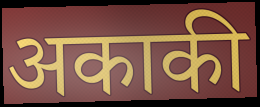
अकाकी